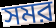
সমর